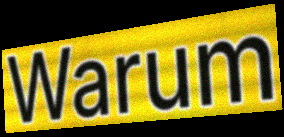
Warum